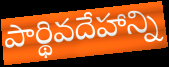
పార్థివదేహాన్ని